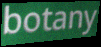
botany